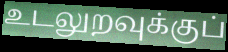
உடலுறவுக்குப்